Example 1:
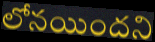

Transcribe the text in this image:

లోనయిందని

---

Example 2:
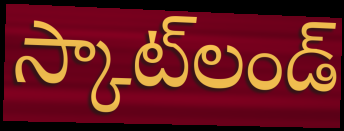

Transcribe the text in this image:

స్కాట్‌లండ్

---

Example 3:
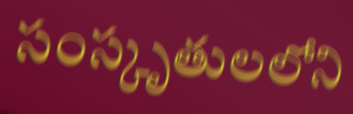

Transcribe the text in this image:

సంస్కృతులలోని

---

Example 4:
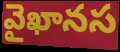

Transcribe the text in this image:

వైఖానస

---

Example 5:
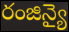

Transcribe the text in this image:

రంజిన్యై